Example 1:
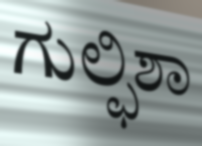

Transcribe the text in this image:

ಗುಲ್ಫಿಶಾ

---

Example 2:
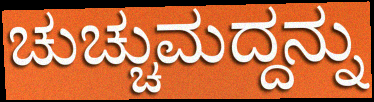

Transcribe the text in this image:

ಚುಚ್ಚುಮದ್ದನ್ನು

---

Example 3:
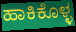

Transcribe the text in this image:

ಹಾಕಿಕೊಳ್ಳ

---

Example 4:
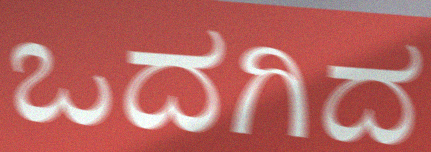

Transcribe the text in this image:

ಒದಗಿದ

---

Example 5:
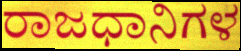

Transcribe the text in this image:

ರಾಜಧಾನಿಗಳ